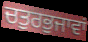
ਚਤੁਰਭੁਜਾਵਾਂ